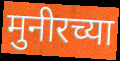
मुनीरच्या